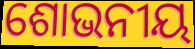
ଶୋଭନୀୟ